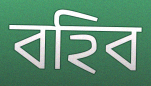
বহিব